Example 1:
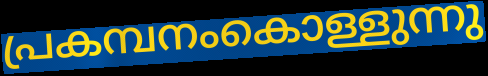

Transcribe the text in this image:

പ്രകമ്പനംകൊള്ളുന്നു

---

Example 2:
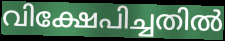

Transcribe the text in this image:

വിക്ഷേപിച്ചതിൽ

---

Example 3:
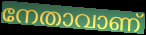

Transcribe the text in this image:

നേതാവാണ്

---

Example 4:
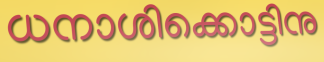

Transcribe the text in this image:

ധനാശിക്കൊട്ടിനു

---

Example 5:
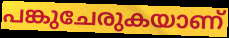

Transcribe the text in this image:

പങ്കുചേരുകയാണ്